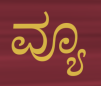
ವ್ಯೂ